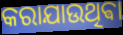
କରାଯାଉଥିଵା